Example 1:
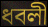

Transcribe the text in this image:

ধবলী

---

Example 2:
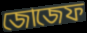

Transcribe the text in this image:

জোজেফ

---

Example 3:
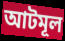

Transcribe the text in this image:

আটমূল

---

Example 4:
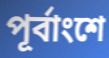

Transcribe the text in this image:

পূর্বাংশে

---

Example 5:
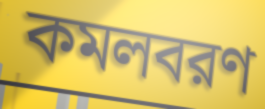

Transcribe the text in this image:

কমলবরণ